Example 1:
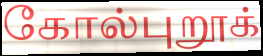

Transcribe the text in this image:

கோல்புறூக்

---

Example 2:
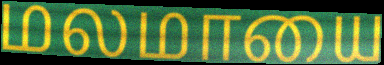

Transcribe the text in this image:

மலமாயை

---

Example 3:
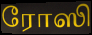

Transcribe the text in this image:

ரோஸி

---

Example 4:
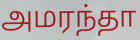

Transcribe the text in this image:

அமரந்தா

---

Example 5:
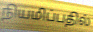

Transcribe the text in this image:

நியமிப்பதில்